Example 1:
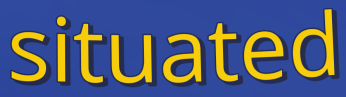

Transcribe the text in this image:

situated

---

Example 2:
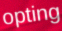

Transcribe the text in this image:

opting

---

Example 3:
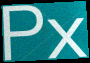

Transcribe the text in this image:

Px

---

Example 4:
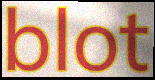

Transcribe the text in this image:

blot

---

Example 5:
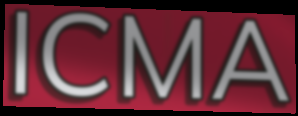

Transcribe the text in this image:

ICMA